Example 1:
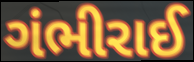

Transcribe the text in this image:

ગંભીરાઈ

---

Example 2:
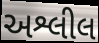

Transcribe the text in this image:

અશ્લીલ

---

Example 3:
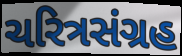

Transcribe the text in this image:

ચરિત્રસંગ્રહ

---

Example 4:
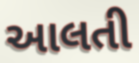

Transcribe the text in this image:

આલતી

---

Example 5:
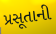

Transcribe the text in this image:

પ્રસૂતાની